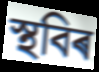
স্থবিৰ